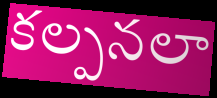
కల్పనలా